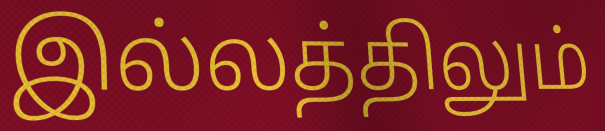
இல்லத்திலும்